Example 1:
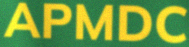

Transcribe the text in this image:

APMDC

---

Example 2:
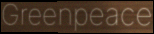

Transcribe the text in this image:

Greenpeace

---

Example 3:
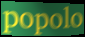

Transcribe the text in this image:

popolo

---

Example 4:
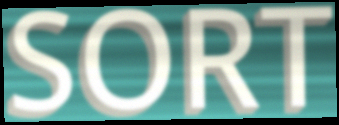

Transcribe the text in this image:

SORT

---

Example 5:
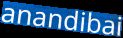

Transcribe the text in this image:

anandibai